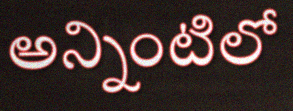
అన్నింటిలో